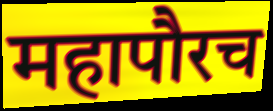
महापौरच